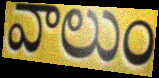
వాలుం